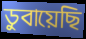
ডুবায়েছি